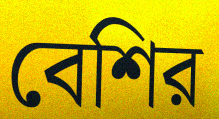
বেশির